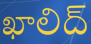
ఖాలిద్